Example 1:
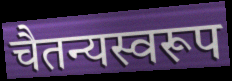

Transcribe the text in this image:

चैतन्यस्वरूप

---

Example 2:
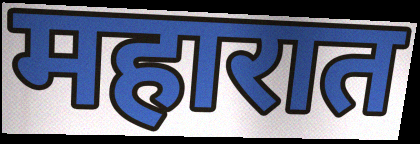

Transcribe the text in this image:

महारात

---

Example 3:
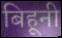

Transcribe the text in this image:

बिहूनी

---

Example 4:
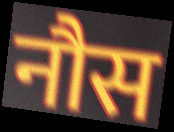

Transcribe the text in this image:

नौस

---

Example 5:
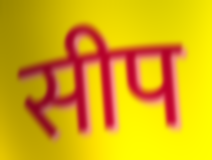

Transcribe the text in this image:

सीप